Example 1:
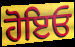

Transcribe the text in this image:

ਹੋਇਓ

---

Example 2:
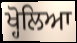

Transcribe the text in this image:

ਖ੍ਹੋਲਿਆ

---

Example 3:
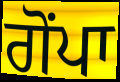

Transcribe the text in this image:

ਗੋਂਪਾ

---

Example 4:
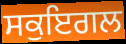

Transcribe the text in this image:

ਸਕੁਇਗਲ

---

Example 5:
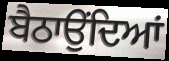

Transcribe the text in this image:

ਬੈਠਾਉਂਦਿਆਂ